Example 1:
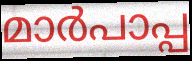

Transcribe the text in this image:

മാർപാപ്പ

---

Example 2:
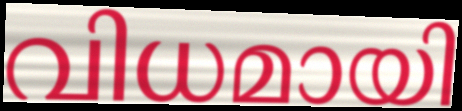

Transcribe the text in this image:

വിധമായി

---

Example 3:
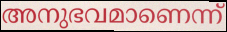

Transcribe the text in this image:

അനുഭവമാണെന്ന്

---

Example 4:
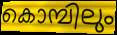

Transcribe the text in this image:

കൊമ്പിലും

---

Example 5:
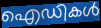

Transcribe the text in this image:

ഐഡികൾ